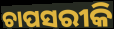
ଚାପସରୀକି